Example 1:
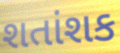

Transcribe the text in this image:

શતાંશક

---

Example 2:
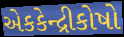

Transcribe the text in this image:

એકકેન્દ્રીકોષો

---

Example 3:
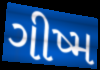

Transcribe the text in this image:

ગીષ્મ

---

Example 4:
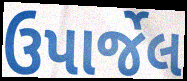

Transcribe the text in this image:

ઉપાર્જેલ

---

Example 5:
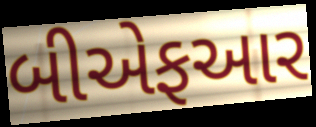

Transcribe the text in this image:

બીએફઆર